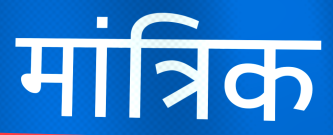
मांत्रिक